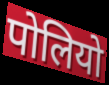
पोलियो